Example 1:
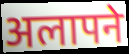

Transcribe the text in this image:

अलापने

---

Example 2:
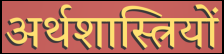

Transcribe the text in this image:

अर्थशास्त्रियों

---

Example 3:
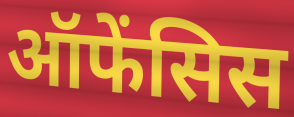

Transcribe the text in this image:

ऑफेंसिस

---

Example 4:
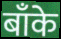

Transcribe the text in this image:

बाँके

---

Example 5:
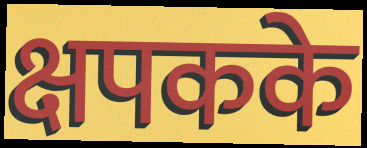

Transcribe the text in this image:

क्षपकके